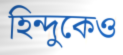
হিন্দুকেও